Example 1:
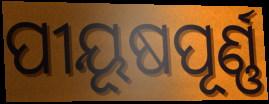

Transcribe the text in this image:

ପୀୟୂଷପୂର୍ଣ୍ଣ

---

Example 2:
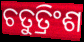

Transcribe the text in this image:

ଚତୁତ୍ରିଂଶ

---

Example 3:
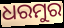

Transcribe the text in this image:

ଧରମୁର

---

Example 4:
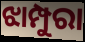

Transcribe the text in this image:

ଝାମ୍ପୁରା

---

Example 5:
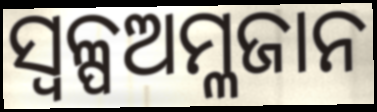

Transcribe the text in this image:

ସ୍ୱଳ୍ପଅମ୍ଳଜାନ